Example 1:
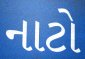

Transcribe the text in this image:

નાટો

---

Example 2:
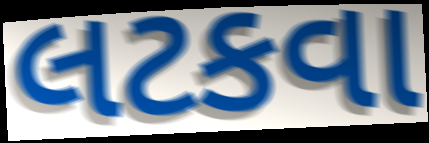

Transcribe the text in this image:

લટકવા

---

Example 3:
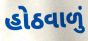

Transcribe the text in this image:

હોઠવાળું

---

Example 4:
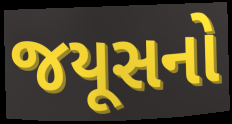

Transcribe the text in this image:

જયૂસનો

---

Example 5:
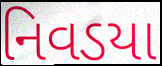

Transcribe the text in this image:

નિવડયા